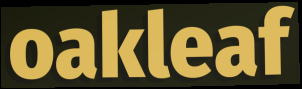
oakleaf